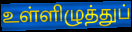
உள்ளிழுத்துப்